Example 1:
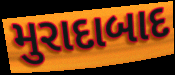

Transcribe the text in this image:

મુરાદાબાદ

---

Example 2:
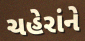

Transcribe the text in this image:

ચહેરાંને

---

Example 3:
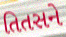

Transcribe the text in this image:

તિતસને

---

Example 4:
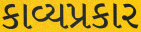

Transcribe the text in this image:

કાવ્યપ્રકાર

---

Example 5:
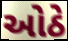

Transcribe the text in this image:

ઓઠે